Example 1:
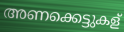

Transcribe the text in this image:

അണക്കെട്ടുകള്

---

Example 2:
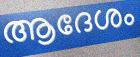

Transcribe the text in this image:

ആദേശം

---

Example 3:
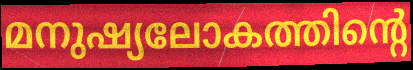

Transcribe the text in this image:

മനുഷ്യലോകത്തിന്റെ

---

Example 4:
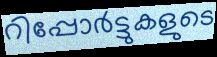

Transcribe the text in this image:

റിപ്പോർട്ടുകളുടെ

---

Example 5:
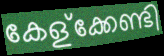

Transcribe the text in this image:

കേള്ക്കേണ്ടി